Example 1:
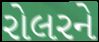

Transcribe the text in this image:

રોલરને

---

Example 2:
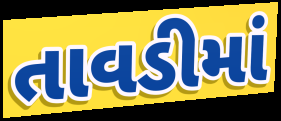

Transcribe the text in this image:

તાવડીમાં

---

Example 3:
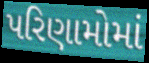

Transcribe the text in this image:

પરિણામોમાં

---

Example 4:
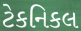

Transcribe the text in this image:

ટેકનિકલ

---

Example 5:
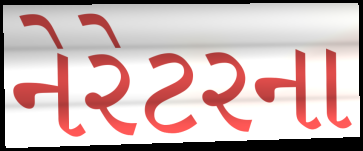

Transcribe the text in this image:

નેરેટરના